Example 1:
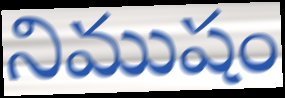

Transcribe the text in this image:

నిముషం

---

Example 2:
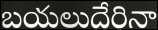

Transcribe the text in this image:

బయలుదేరినా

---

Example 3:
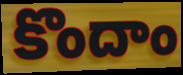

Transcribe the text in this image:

కొందాం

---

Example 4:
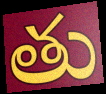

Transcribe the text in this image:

తు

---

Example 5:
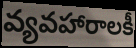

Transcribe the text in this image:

వ్యవహారాలకీ